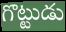
గొట్టుడు